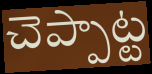
చెప్పాట్ట